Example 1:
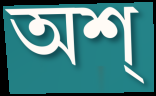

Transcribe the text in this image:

অশ্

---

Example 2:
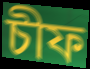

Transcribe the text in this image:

চীফ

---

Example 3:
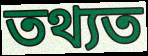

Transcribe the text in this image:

তথ্যত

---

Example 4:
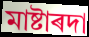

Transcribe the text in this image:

মাষ্টাৰদা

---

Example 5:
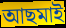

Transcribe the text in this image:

আছমাই